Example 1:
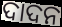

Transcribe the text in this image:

ଦାଦନ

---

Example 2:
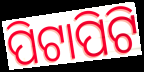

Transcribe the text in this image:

ପିଟାପିଟି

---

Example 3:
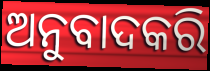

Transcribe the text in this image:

ଅନୁବାଦକରି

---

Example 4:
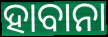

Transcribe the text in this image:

ହାବାନା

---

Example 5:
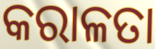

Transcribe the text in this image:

କରାଳତା